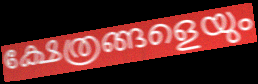
ക്ഷേത്രങ്ങളെയും